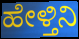
ಹೇಳ್ತಿನಿ